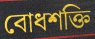
বোধশক্তি